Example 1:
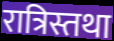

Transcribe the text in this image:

रात्रिस्तथा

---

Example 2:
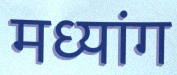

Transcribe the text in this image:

मध्यांग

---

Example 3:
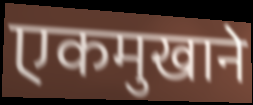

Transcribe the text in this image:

एकमुखाने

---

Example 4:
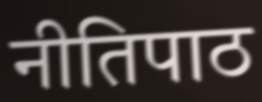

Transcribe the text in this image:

नीतिपाठ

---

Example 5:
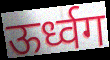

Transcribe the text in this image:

ऊर्ध्वग